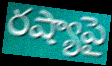
రష్యాపై